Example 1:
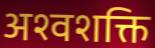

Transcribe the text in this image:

अश्वशक्ति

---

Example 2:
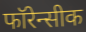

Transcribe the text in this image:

फॉरेन्सीक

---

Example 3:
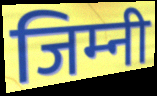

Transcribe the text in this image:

जिम्नी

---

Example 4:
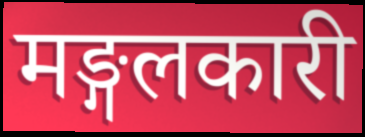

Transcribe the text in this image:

मङ्गलकारी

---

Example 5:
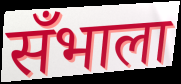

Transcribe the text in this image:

सँभाला